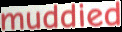
muddied